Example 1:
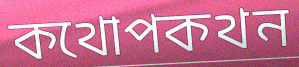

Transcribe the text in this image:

কথোপকথন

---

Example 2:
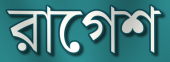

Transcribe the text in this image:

রাগেশ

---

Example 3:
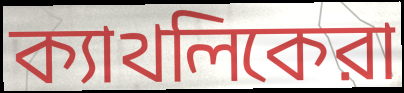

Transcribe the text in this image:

ক্যাথলিকেরা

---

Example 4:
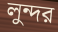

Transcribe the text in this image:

লুন্দর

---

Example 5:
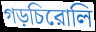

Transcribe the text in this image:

গড়চিরোলি